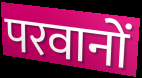
परवानों